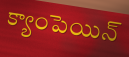
క్యాంపెయిన్